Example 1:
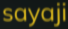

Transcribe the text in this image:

sayaji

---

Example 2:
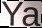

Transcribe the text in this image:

Ya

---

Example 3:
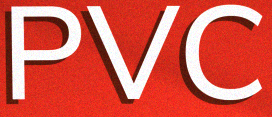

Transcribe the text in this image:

PVC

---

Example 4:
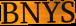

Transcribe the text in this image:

BNYS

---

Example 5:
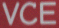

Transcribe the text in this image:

VCE